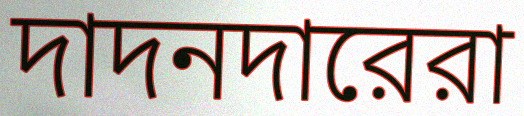
দাদনদারেরা